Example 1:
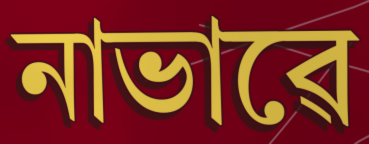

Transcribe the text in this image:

নাভাৱে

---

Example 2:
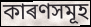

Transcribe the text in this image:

কাৰণসমূহ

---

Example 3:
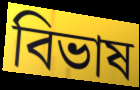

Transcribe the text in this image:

বিভাষ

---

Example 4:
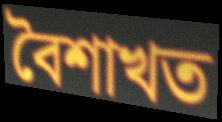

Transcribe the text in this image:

বৈশাখত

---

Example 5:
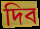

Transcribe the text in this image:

দিব